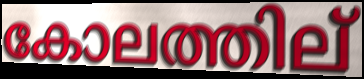
കോലത്തില്